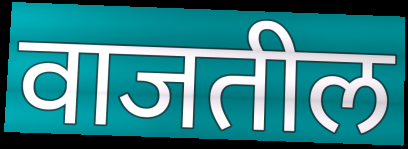
वाजतील